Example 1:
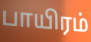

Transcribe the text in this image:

பாயிரம்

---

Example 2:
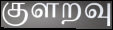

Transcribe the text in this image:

குளறவு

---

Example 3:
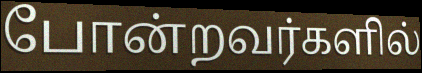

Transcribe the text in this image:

போன்றவர்களில்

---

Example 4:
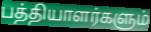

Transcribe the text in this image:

பத்தியாளர்களும்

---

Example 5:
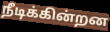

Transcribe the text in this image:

நீடிக்கின்றன